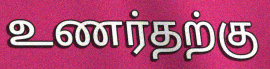
உணர்தற்கு